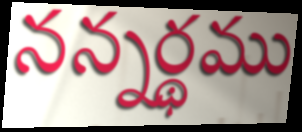
నన్నర్థము